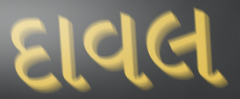
દાવલ